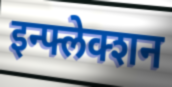
इन्फ्लेक्शन